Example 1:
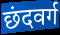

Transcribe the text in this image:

छंदवर्ग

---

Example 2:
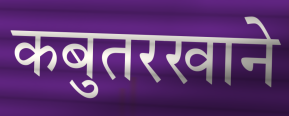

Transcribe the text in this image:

कबुतरखाने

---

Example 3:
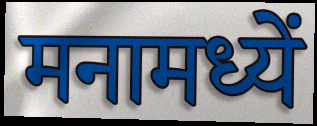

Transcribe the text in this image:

मनामध्यें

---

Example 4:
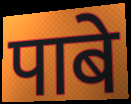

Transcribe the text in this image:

पाबे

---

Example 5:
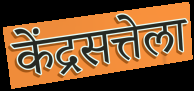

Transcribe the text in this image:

केंद्रसत्तेला